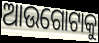
ଆଉଗୋଟାକୁ